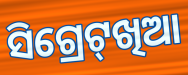
ସିଗ୍ରେଟ୍‌ଖିଆ